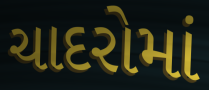
ચાદરોમાં